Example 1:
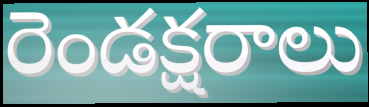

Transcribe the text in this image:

రెండక్షరాలు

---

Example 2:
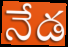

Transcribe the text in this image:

నేడ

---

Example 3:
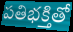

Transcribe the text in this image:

పతిభక్తితో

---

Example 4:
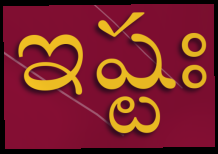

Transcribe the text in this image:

ఇష్టః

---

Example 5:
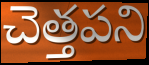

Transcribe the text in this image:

చెత్తపని